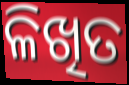
ଳିଖିତ